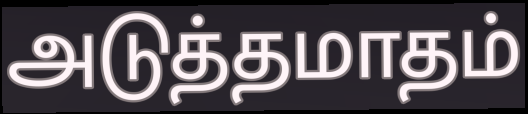
அடுத்தமாதம்